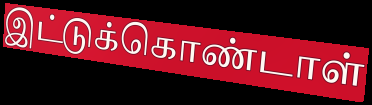
இட்டுக்கொண்டாள்